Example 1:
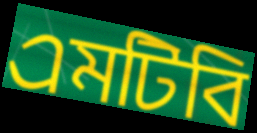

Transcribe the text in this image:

এমটিবি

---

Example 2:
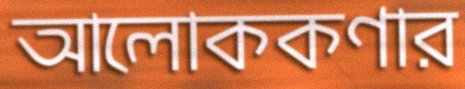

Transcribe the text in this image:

আলোককণার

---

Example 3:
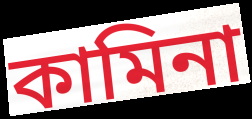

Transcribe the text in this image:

কামিনা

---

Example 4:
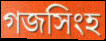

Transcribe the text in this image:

গজসিংহ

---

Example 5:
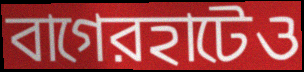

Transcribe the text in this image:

বাগেরহাটেও